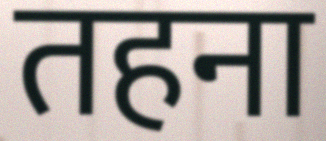
तहना